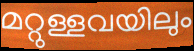
മറ്റുള്ളവയിലും